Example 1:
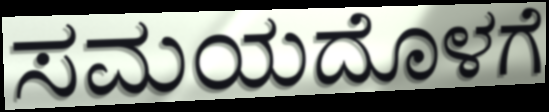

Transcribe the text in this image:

ಸಮಯದೊಳಗೆ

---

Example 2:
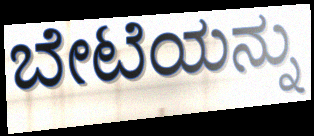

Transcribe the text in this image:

ಬೇಟೆಯನ್ನು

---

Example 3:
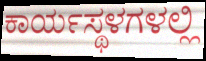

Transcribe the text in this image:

ಕಾರ್ಯಸ್ಥಳಗಳಲ್ಲಿ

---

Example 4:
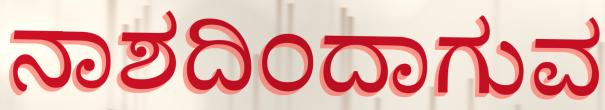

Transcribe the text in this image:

ನಾಶದಿಂದಾಗುವ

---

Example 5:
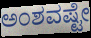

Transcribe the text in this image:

ಅಂಶವಷ್ಟೇ